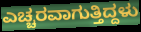
ಎಚ್ಚರವಾಗುತ್ತಿದ್ದಳು